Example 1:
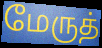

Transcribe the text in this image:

மேருத்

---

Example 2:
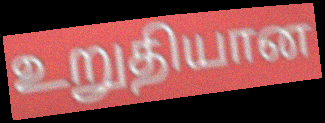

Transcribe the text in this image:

உறுதியான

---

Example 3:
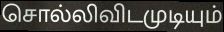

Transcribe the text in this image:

சொல்லிவிடமுடியும்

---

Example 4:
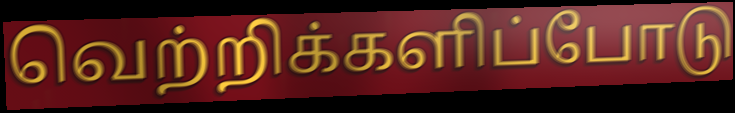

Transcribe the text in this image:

வெற்றிக்களிப்போடு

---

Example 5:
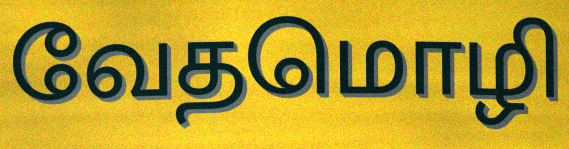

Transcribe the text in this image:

வேதமொழி